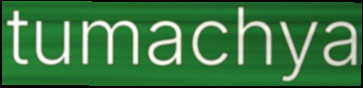
tumachya